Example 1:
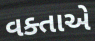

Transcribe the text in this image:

વક્તાએ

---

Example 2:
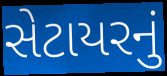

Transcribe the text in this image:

સેટાયરનું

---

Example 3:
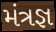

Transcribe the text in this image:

મંત્રજ્ઞ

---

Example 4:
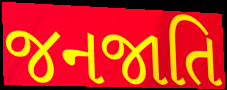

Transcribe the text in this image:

જનજાતિ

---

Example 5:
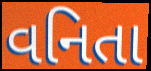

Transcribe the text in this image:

વનિતા